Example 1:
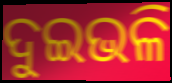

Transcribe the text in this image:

ଦୁଇଭଳି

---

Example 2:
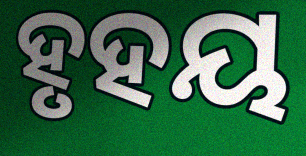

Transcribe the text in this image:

ହୃହୟ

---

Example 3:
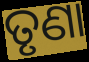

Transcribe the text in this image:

ତୃଣା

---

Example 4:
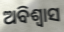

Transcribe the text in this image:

ଅବିଶ୍ବାସ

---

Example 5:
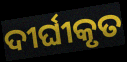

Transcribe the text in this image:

ଦୀର୍ଘୀକୃତ